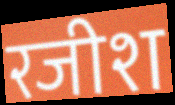
रजीश